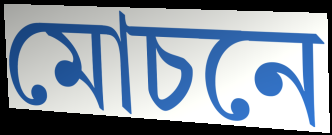
মোচনে